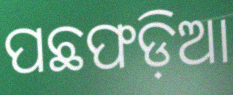
ପଛଫଡ଼ିଆ